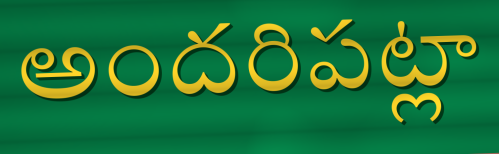
అందరిపట్లా